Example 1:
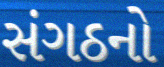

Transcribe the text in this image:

સંગઠનો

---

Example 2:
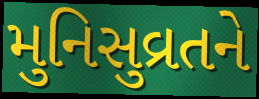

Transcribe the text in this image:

મુનિસુવ્રતને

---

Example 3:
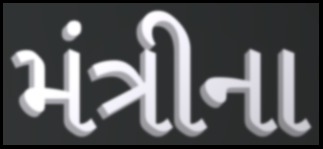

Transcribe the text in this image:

મંત્રીના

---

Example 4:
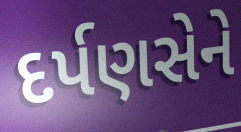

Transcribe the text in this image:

દર્પણસેને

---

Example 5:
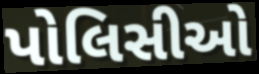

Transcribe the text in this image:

પોલિસીઓ